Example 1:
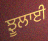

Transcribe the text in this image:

ਝੂਲਾਈ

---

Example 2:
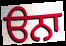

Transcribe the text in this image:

ੳਨਾ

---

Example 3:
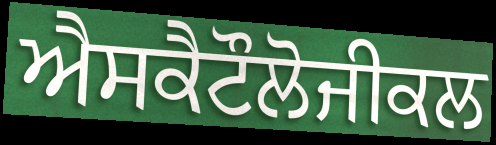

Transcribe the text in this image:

ਐਸਕੈਟੌਲੋਜੀਕਲ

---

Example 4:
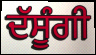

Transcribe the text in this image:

ਦੱਸੂੰਗੀ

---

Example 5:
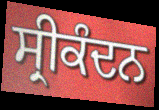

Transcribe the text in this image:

ਸ੍ਰੀਕੰਦਨ